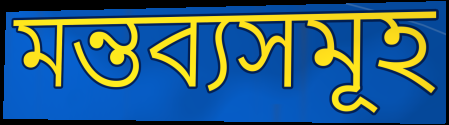
মন্তব্যসমূহ